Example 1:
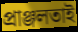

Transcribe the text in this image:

প্রাঞ্জলতাই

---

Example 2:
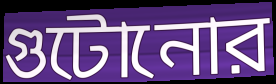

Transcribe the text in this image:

গুটোনোর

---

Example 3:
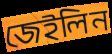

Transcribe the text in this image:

জেইলিন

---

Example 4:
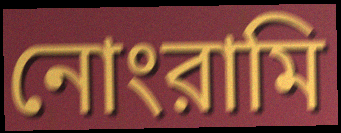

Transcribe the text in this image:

নোংরামি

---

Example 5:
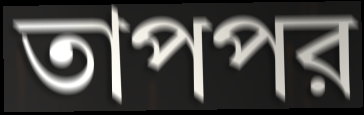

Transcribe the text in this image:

তাপপর